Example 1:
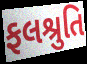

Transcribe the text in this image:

ફલશ્રુતિ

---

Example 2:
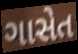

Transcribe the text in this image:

ગાસેત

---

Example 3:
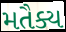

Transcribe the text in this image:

મતૈક્ય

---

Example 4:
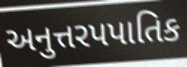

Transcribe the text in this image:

અનુત્તરપપાતિક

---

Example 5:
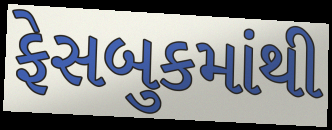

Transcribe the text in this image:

ફેસબુકમાંથી